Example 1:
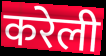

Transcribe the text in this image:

करेली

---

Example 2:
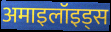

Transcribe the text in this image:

अमाइलॉइड्स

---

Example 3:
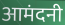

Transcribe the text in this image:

आमंदनी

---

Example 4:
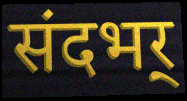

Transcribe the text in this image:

संदभर्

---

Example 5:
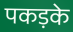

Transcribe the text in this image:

पकड़के